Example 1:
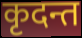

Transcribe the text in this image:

कृदन्त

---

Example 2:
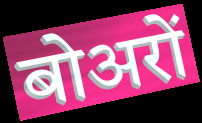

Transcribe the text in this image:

बोअरों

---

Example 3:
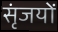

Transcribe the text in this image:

सृंजयों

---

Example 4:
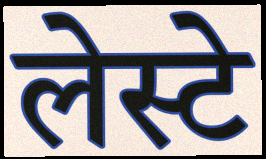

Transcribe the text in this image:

लेस्टे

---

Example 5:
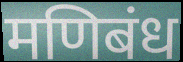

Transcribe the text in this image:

मणिबंध